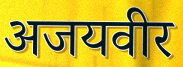
अजयवीर